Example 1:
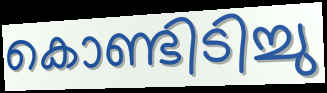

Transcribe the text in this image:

കൊണ്ടിടിച്ചു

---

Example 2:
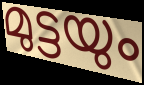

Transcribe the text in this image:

മുട്ടയും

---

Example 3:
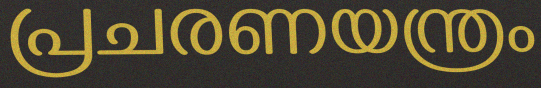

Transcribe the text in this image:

പ്രചരണയന്ത്രം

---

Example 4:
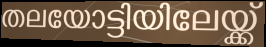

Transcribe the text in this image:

തലയോട്ടിയിലേയ്ക്ക്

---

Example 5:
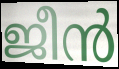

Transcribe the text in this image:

ജീൻ